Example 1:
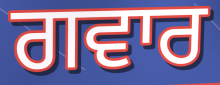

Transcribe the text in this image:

ਗਵਾਰ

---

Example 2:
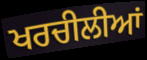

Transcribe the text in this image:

ਖਰਚੀਲੀਆਂ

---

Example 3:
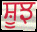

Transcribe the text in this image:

ਸ਼ੂਝ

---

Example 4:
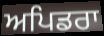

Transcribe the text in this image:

ਅਪਿਡਰਾ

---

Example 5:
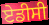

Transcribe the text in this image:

ਏਡੀਸੀ